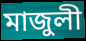
মাজুলী